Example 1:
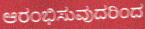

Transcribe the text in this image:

ಆರಂಭಿಸುವುದರಿಂದ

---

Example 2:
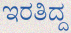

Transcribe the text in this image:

ಇರತಿದ್ದ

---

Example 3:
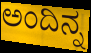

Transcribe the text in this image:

ಅಂದಿನ್ನ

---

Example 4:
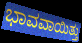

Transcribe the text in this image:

ಭಾವವಾಯಿತ್ತು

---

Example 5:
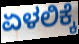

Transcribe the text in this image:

ಏಳಲಿಕ್ಕೆ